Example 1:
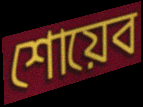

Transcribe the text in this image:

শোয়েব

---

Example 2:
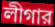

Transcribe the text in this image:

লীগার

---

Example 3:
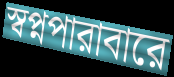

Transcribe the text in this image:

স্বপ্নপারাবারে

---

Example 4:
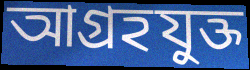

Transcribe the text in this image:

আগ্রহযুক্ত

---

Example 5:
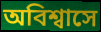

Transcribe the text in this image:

অবিশ্বাসে